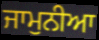
ਜਾਮੁਨੀਆ